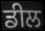
ਡੀਲ